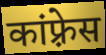
कांफ़्रेस